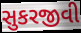
સુકરજીવી